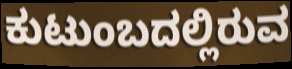
ಕುಟುಂಬದಲ್ಲಿರುವ